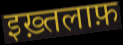
इख़्तलाफ़